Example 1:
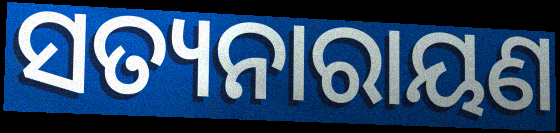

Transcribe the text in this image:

ସତ୍ୟନାରାୟଣ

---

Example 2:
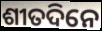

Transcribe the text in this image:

ଶୀତଦିନେ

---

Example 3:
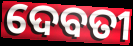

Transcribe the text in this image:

ଦେବତୀ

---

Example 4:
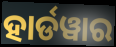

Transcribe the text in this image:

ହାର୍ଡୱାର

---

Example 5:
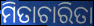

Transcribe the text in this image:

ମିତାଚାରିତା